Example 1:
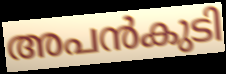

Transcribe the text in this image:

അപൻകുടി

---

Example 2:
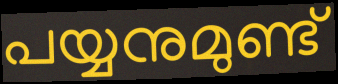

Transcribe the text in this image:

പയ്യനുമുണ്ട്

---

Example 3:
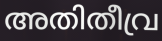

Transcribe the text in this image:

അതിതീവ്ര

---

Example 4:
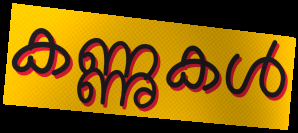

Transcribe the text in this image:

കണ്ണുകൾ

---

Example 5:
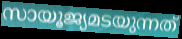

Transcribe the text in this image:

സായൂജ്യമടയുന്നത്